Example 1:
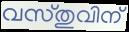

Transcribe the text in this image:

വസ്തുവിന്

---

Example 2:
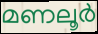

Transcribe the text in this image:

മണലൂർ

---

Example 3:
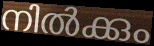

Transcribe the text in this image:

നിൽക്കും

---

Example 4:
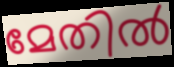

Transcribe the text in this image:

മേതിൽ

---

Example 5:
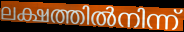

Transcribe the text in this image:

ലക്ഷത്തിൽനിന്ന്